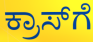
ಕ್ರಾಸ್‌ಗೆ